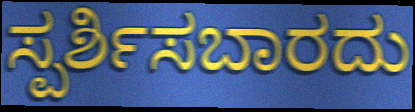
ಸ್ಪರ್ಶಿಸಬಾರದು